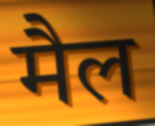
मैल